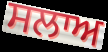
ਸਲਾਅ